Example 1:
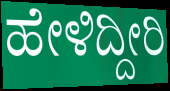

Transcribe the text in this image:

ಹೇಳಿದ್ದೀರಿ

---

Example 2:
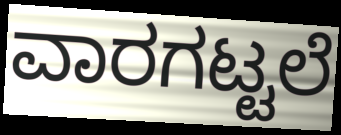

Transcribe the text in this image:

ವಾರಗಟ್ಟಲೆ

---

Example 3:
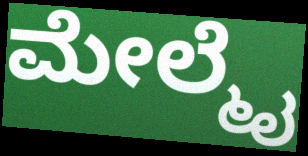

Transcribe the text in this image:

ಮೇಲ್ಮೈ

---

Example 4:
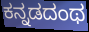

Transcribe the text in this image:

ಕನ್ನಡದಂಥ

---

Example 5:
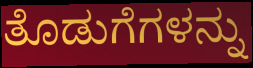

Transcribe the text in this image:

ತೊಡುಗೆಗಳನ್ನು